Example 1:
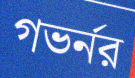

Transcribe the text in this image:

গভর্নর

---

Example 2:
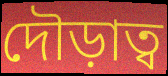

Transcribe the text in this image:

দৌড়াত্ব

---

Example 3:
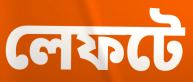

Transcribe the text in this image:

লেফটে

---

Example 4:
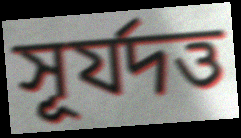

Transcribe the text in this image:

সূর্যদত্ত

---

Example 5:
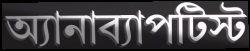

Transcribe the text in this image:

অ্যানাব্যাপটিস্ট